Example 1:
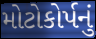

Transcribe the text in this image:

મોટોકોર્પનું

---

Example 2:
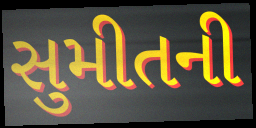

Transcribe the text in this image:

સુમીતની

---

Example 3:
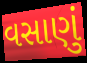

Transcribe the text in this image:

વસાણું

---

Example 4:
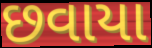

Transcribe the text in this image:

છવાયા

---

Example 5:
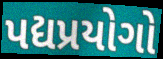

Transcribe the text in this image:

પદ્યપ્રયોગો